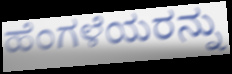
ಹೆಂಗಳೆಯರನ್ನು